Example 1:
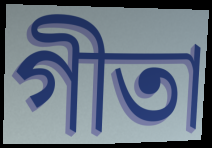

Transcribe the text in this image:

গীতা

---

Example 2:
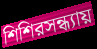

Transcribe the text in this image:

শিশিরসন্ধ্যায়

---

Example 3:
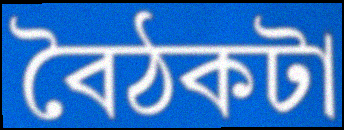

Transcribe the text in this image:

বৈঠকটা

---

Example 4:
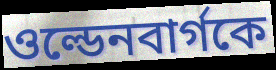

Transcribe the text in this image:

ওল্ডেনবার্গকে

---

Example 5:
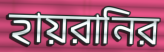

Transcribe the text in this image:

হায়রানির